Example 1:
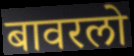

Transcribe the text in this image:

बावरलो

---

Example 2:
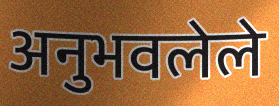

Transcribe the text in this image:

अनुभवलेले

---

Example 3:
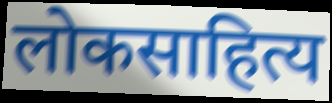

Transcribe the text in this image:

लोकसाहित्य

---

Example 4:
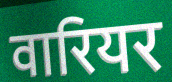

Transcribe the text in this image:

वारियर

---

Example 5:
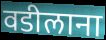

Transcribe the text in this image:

वडीलाना